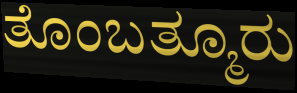
ತೊಂಬತ್ಮೂರು